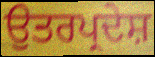
ਉਤਰਪ੍ਰਦੇਸ਼